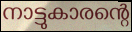
നാട്ടുകാരന്റെ